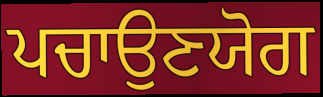
ਪਚਾਉਣਯੋਗ